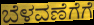
ಬೆಳವಣೆಗೆಗೆ